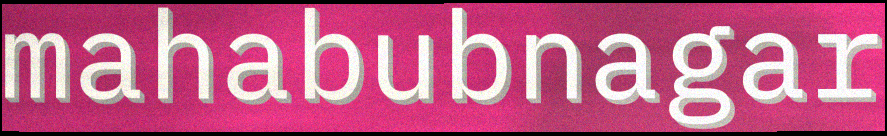
mahabubnagar